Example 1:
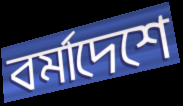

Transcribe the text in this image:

বর্মাদেশে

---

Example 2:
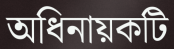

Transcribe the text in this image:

অধিনায়কটি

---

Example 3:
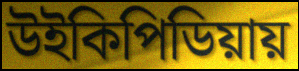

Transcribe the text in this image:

উইকিপিডিয়ায়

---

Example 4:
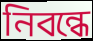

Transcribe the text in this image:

নিবন্ধে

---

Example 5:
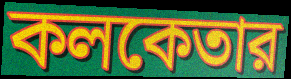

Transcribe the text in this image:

কলকেতার